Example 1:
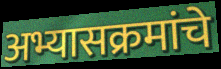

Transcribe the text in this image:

अभ्यासक्रमांचे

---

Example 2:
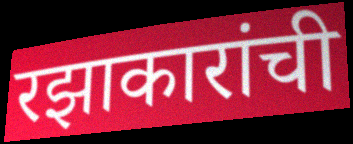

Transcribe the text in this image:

रझाकारांची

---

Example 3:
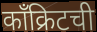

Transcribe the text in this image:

काँक्रिटची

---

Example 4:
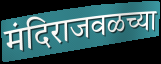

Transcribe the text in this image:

मंदिराजवळच्या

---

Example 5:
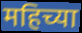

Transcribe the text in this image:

महिच्या